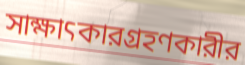
সাক্ষাৎকারগ্রহণকারীর